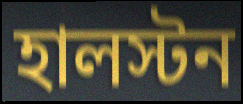
হালস্টন